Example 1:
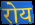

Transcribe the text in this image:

रोय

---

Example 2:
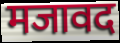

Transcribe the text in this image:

मजावद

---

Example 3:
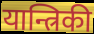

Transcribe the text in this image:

यान्त्रिकी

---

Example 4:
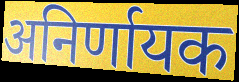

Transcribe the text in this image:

अनिर्णायक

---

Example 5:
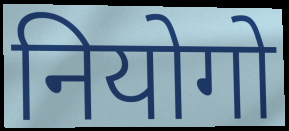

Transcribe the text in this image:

नियोगो